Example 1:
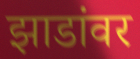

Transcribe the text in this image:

झाडांवर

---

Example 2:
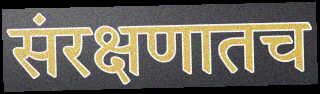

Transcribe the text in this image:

संरक्षणातच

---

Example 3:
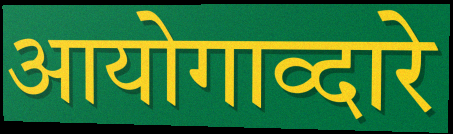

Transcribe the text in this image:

आयोगाव्दारे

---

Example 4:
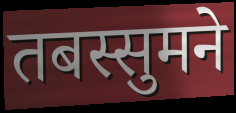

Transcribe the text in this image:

तबस्सुमने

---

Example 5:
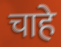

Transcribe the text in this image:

चाहे